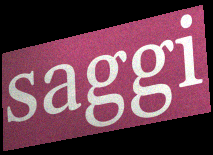
saggi